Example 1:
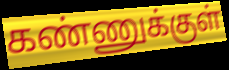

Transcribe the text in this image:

கண்ணுக்குள்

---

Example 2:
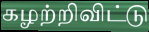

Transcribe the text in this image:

கழற்றிவிட்டு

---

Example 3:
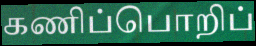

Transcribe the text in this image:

கணிப்பொறிப்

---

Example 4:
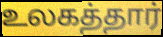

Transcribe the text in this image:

உலகத்தார்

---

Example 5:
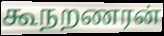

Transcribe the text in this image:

கூநறணரன்